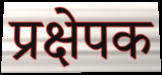
प्रक्षेपक